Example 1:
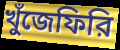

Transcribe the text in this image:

খুঁজেফিরি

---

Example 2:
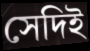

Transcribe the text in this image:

সেদিই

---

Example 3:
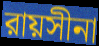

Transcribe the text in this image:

রায়সীনা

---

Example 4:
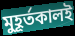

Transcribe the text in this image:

মুহূর্তকালই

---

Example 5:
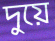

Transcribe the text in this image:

দুয়ে